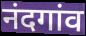
नंदगांव